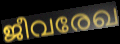
ജീവരേഖ